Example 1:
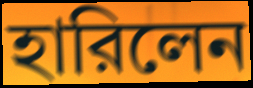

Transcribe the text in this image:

হারিলেন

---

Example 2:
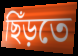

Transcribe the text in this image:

ছিঁড়তে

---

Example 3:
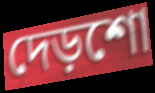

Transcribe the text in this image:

দেড়শো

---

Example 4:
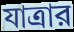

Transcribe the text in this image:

যাত্রার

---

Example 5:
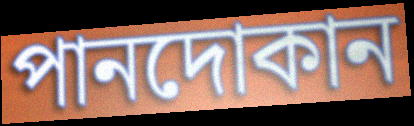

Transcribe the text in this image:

পানদোকান